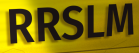
RRSLM